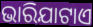
ଭାରିଯାଟାଏ